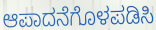
ಆಪಾದನೆಗೊಳಪಡಿಸಿ